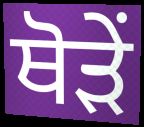
ਥੋੜੇਂ